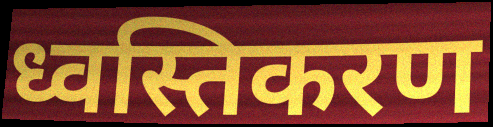
ध्वस्तिकरण